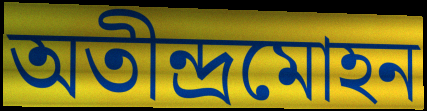
অতীন্দ্রমোহন